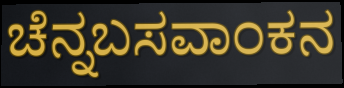
ಚೆನ್ನಬಸವಾಂಕನ